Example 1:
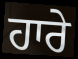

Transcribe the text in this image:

ਹਾਰੇ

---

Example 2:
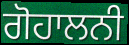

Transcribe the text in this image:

ਗੋਹਾਲਨੀ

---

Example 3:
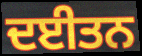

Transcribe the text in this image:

ਦਈਤਨ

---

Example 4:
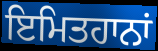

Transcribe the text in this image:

ਇਮਿਤਹਾਨਾਂ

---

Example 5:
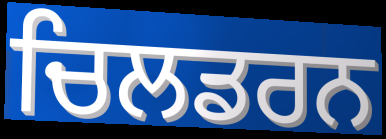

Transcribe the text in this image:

ਚਿਲਡਰਨ